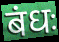
बंधः